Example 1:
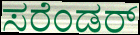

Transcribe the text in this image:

ಸರೆಂಡರ್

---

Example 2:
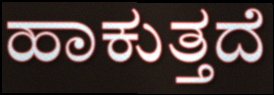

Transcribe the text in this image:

ಹಾಕುತ್ತದೆ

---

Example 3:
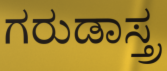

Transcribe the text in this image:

ಗರುಡಾಸ್ತ್ರ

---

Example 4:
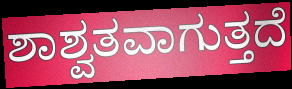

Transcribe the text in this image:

ಶಾಶ್ವತವಾಗುತ್ತದೆ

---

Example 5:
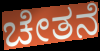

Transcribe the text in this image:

ಚೇತನೆ